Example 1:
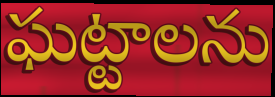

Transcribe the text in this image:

ఘట్టాలను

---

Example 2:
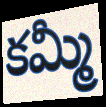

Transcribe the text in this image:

కమ్మీ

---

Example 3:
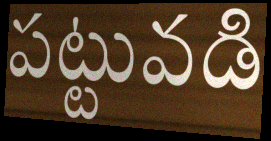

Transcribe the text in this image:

పట్టువడి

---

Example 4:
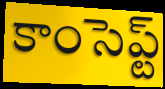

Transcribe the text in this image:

కాంసెప్ట్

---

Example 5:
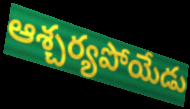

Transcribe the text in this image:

ఆశ్చర్యపోయేడు